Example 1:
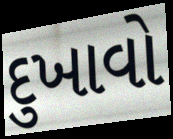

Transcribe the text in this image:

દુખાવો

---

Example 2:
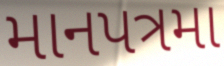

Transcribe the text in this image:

માનપત્રમા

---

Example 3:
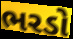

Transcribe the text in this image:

ભરડો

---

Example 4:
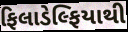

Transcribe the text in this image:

ફિલાડેલ્ફિયાથી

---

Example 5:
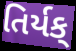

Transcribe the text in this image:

તિર્યક્